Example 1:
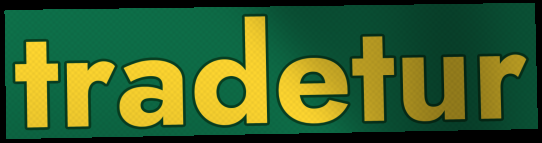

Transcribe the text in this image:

tradetur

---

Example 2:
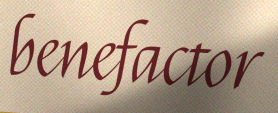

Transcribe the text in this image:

benefactor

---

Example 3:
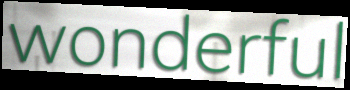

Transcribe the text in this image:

wonderful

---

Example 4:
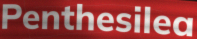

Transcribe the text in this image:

Penthesilea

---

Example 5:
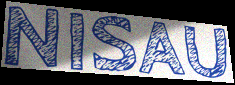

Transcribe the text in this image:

NISAU